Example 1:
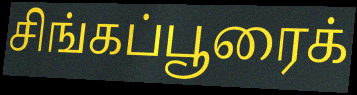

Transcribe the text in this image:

சிங்கப்பூரைக்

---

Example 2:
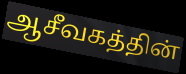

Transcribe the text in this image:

ஆசீவகத்தின்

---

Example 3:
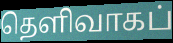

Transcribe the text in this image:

தெளிவாகப்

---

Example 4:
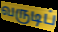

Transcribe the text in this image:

வருடிப்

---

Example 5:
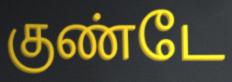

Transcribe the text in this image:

குண்டே